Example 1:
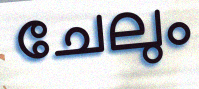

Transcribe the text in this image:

ചേലും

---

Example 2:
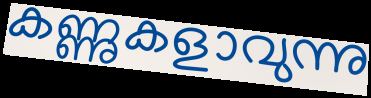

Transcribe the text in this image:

കണ്ണുകളാവുന്നു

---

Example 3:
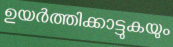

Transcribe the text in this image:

ഉയർത്തിക്കാട്ടുകയും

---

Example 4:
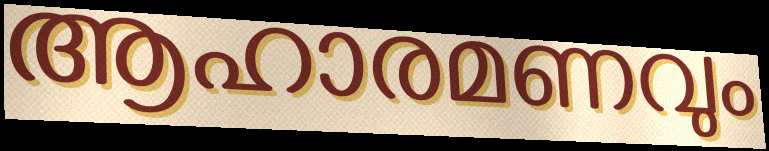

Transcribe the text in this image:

ആഹാരമണവും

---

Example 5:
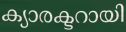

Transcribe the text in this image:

ക്യാരക്ടറായി